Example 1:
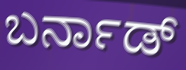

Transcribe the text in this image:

ಬರ್ನಾಡ್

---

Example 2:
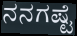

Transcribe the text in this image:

ನನಗಷ್ಟೆ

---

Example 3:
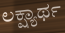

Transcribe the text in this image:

ಲಕ್ಷ್ಯಾರ್ಥ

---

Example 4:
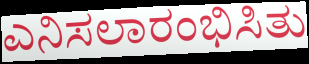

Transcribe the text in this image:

ಎನಿಸಲಾರಂಭಿಸಿತು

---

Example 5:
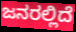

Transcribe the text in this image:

ಜನರಲ್ಲಿದೆ